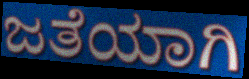
ಜತೆಯಾಗಿ